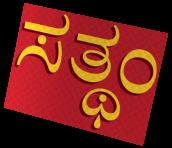
ಸತ್ಥಂ